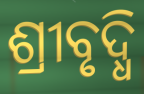
ଶ୍ରୀବୃଦ୍ଧି